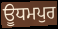
ਊਧਮਪੁਰ